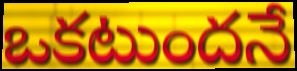
ఒకటుందనే